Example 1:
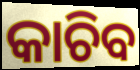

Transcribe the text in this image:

କାଚିବ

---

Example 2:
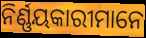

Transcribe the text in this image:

ନିର୍ଣ୍ଣୟକାରୀମାନେ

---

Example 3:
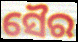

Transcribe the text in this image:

ସୈର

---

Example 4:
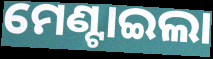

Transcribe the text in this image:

ମେଣ୍ଟାଇଲା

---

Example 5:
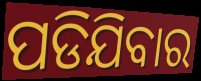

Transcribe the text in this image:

ପଡିଯିବାର